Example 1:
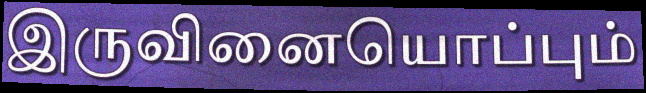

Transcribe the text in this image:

இருவினையொப்பும்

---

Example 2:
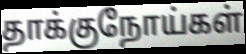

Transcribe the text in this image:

தாக்குநோய்கள்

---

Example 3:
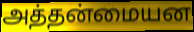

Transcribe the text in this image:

அத்தன்மையன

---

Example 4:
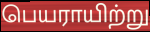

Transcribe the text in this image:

பெயராயிற்று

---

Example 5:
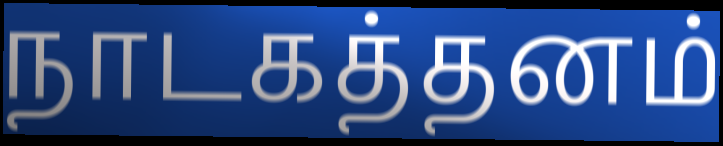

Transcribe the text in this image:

நாடகத்தனம்